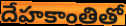
దేహకాంతితో